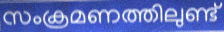
സംക്രമണത്തിലുണ്ട്